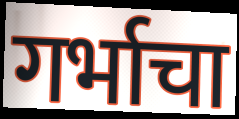
गर्भाचा